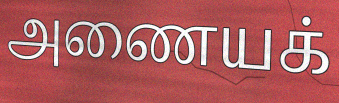
அணையக்